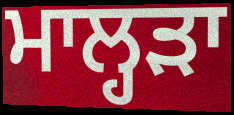
ਮਾਲ੍ਹੜਾ